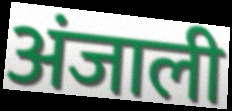
अंजाली